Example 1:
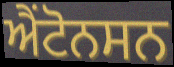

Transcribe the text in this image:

ਐਂਟੋਨਸਨ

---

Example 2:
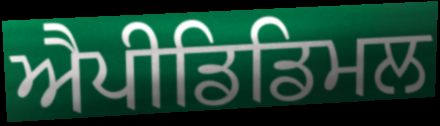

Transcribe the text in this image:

ਐਪੀਡਿਡਿਮਲ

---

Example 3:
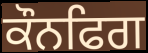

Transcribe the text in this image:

ਕੌਨਫਿਗ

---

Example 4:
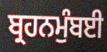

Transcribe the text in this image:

ਬ੍ਰਹਨਮੁੰਬਈ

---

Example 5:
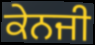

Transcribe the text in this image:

ਕੇਨਜੀ